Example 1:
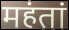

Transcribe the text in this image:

महंतां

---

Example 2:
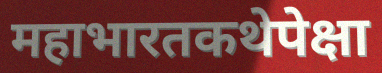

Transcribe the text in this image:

महाभारतकथेपेक्षा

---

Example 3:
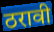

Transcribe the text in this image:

ठरावी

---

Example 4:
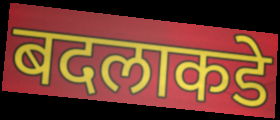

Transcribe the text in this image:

बदलाकडे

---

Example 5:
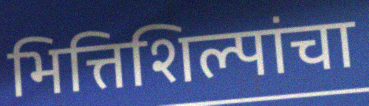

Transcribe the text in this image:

भित्तिशिल्पांचा